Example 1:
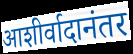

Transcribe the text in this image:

आशीर्वादानंतर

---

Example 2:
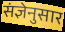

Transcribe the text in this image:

संज्ञेनुसार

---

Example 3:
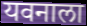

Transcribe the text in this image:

यवनाला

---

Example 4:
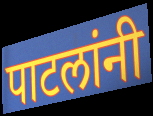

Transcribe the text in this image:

पाटलांनी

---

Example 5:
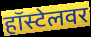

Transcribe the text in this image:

हॉस्टेलवर